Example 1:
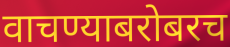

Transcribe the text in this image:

वाचण्याबरोबरच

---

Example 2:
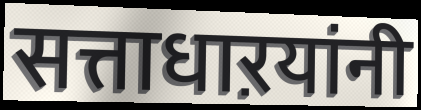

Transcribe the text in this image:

सत्ताधाऱयांनी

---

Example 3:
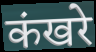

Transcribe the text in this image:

कंखरे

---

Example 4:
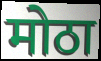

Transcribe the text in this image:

मोठा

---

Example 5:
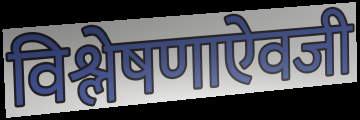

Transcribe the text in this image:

विश्लेषणाऐवजी